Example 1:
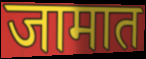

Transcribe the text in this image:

जामात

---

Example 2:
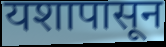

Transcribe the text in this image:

यशापासून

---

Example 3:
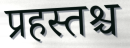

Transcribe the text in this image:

प्रहस्तश्च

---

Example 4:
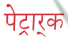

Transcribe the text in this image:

पेट्रार्क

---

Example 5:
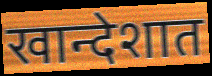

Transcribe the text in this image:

खान्देशात